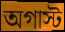
অগাস্ট